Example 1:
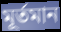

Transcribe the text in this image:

মূৰ্তমান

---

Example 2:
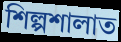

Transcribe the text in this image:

শিল্পশালাত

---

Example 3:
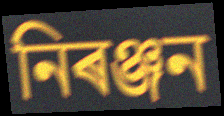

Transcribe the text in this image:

নিৰঞ্জন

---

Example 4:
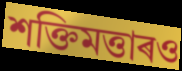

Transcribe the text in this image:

শক্তিমত্তাৰও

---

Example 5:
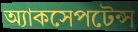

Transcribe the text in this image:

অ্যাকসেপটেন্স